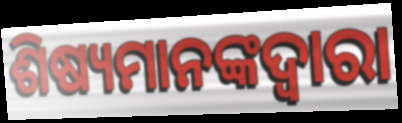
ଶିଷ୍ୟମାନଙ୍କଦ୍ୱାରା